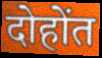
दोहोंत